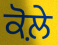
ਕੋਲ਼ੇ